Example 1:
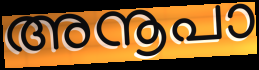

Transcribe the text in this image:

അനൂപാ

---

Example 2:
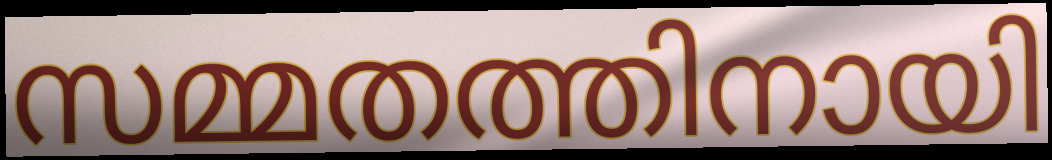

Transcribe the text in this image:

സമ്മതത്തിനായി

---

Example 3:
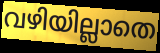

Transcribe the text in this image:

വഴിയില്ലാതെ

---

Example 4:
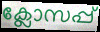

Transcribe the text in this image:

ക്ലോസപ്പ്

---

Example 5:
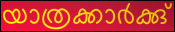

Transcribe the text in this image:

യാത്രക്കാർക്കു്